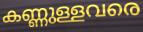
കണ്ണുള്ളവരെ